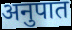
अनुपात